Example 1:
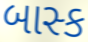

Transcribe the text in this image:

બાસ્ક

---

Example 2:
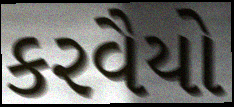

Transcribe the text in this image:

કરવૈયો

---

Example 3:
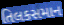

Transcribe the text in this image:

તિલકસમાન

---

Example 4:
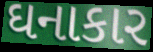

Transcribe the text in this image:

ઘનાકાર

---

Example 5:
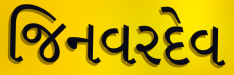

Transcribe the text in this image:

જિનવરદેવ